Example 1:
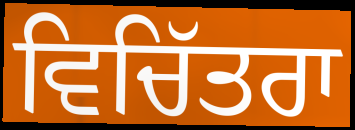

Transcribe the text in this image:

ਵਿਚਿੱਤਰਾ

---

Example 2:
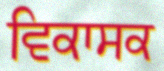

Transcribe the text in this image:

ਵਿਕਾਸਕ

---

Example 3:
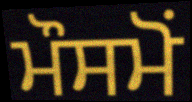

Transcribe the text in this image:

ਮੌਸਮੋਂ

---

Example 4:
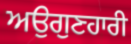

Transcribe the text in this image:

ਅਉਗੁਣਹਾਰੀ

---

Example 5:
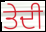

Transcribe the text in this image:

ਤੇਦੀ